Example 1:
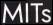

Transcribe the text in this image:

MITs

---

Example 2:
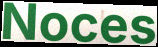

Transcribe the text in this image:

Noces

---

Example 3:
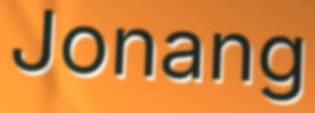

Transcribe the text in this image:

Jonang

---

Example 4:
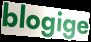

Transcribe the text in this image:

blogige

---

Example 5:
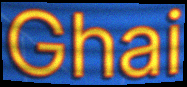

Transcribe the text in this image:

Ghai